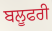
ਬਲੂਫਰੀ